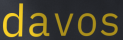
davos